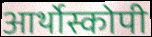
आर्थोस्कोपी